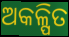
ଅକଳ୍ପିତ